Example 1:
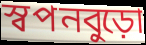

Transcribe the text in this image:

স্বপনবুড়ো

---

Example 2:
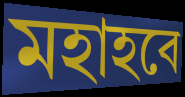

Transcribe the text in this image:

মহাহবে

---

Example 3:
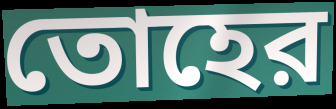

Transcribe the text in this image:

তোহের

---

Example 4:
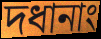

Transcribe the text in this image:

দধানাং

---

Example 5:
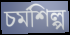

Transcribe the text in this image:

চর্মশিল্প